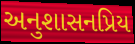
અનુશાસનપ્રિય